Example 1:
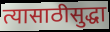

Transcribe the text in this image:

त्यासाठीसुद्धा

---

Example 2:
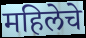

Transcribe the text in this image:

महिलेचे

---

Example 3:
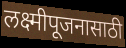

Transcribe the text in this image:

लक्ष्मीपूजनासाठी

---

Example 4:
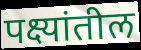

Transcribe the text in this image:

पक्ष्यांतील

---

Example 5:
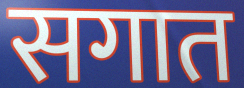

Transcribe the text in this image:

सगात